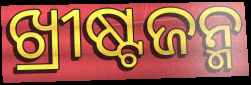
ଖ୍ରୀଷ୍ଟଜନ୍ମ